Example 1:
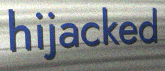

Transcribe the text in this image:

hijacked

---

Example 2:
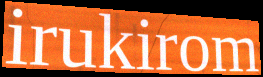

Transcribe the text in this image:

irukirom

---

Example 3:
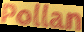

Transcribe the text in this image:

Pollan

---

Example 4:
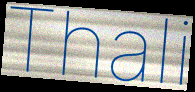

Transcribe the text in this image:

Thali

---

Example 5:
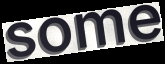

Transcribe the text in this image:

some